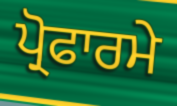
ਪ੍ਰੋਫਾਰਮੇ